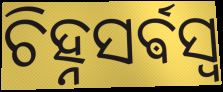
ଚିହ୍ନସର୍ଵସ୍ଵ